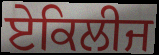
ਏਕਿਲੀਜ